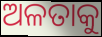
ଅଳତାକୁ